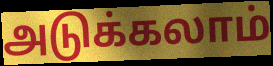
அடுக்கலாம்